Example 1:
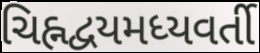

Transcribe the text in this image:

ચિહ્નદ્વયમધ્યવર્તી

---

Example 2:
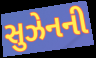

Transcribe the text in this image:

સુઝેનની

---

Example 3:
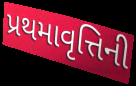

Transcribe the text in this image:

પ્રથમાવૃત્તિની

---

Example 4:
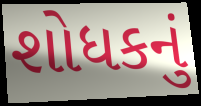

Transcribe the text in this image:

શોધકનું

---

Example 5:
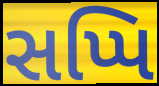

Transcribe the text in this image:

સપ્પિ